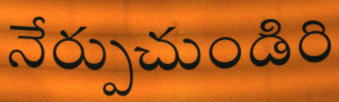
నేర్పుచుండిరి